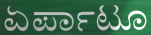
ಏರ್ಪಾಟೂ